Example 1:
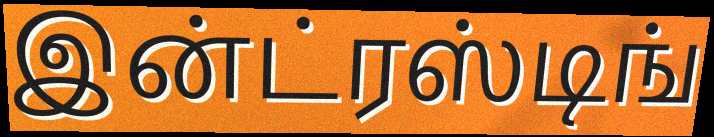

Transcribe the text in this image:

இன்ட்ரஸ்டிங்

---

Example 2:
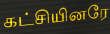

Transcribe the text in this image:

கட்சியினரே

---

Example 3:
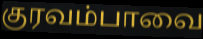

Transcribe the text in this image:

குரவம்பாவை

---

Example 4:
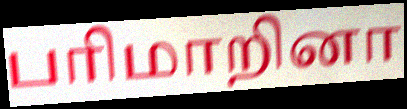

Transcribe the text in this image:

பரிமாறினா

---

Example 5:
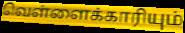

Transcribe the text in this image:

வெள்ளைக்காரியும்